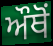
ਔਥੋਂ